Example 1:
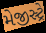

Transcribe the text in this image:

મેજીસ્ર્ટ્રે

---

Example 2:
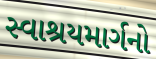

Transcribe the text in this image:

સ્વાશ્રયમાર્ગનો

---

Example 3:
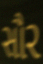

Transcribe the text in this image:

સૌર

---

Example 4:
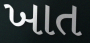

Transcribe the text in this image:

ખાત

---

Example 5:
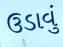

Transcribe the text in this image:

ઉડાવું